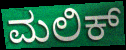
ಮಲಿಕ್